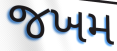
જખમ